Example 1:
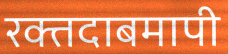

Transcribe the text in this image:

रक्तदाबमापी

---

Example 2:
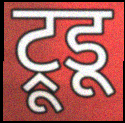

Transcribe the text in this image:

ट्रूडू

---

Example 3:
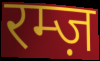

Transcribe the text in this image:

रम्ज़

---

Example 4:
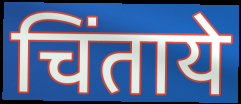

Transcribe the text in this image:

चिंताये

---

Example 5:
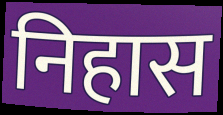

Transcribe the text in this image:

निहास